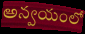
అన్వయంలో